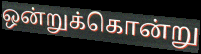
ஒன்றுக்கொன்று